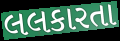
લલકારતા